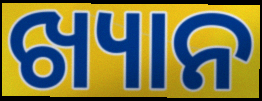
ଖ୍ୟାନ